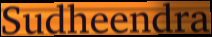
Sudheendra